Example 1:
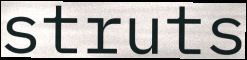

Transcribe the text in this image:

struts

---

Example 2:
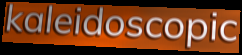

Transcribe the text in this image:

kaleidoscopic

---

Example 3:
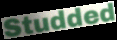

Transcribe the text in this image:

Studded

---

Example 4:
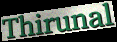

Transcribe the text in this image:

Thirunal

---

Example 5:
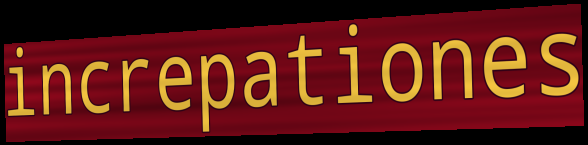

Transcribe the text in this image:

increpationes